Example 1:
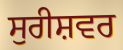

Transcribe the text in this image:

ਸੁਰੀਸ਼ਵਰ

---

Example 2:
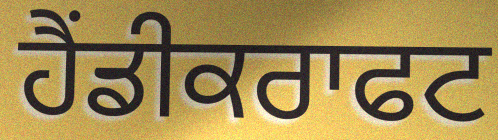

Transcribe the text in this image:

ਹੈਂਡੀਕਰਾਫਟ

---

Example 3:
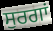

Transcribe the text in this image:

ਸੁਰਗਾਂ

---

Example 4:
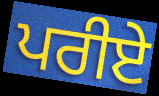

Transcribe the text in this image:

ਪਰੀਏ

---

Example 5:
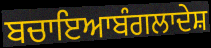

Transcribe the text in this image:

ਬਚਾਇਆਬੰਗਲਾਦੇਸ਼